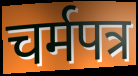
चर्मपत्र